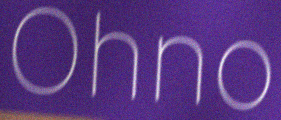
Ohno